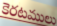
కెరటములు